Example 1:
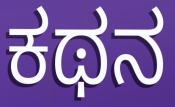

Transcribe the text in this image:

ಕಥನ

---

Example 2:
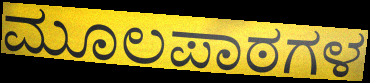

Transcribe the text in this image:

ಮೂಲಪಾಠಗಳ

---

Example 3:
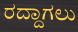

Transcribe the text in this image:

ರದ್ದಾಗಲು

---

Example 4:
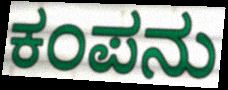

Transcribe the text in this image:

ಕಂಪನು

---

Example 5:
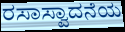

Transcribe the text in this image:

ರಸಾಸ್ವಾದನೆಯ